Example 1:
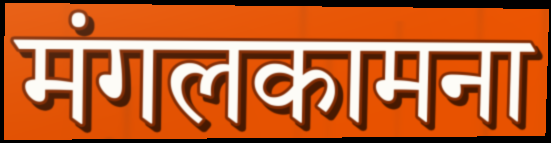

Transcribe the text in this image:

मंगलकामना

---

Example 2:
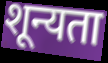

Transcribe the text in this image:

शून्‍यता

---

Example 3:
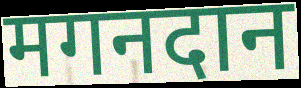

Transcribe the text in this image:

मगनदान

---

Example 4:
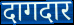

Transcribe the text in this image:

दागदार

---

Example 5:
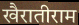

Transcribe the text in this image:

खैरातीराम